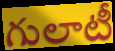
గులాటీ